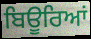
ਬਿਊਰਿਆਂ